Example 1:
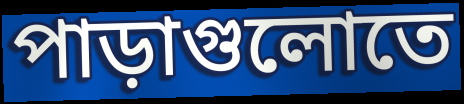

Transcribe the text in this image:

পাড়াগুলোতে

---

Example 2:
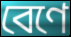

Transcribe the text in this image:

বেণে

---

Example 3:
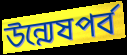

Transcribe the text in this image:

উন্মেষপর্ব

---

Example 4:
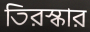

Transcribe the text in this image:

তিরস্কার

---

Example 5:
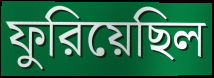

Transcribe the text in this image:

ফুরিয়েছিল